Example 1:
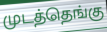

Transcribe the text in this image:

முடத்தெங்கு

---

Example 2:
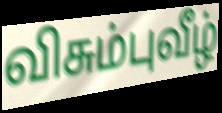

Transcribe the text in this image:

விசும்புவீழ்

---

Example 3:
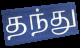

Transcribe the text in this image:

தந்து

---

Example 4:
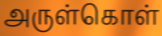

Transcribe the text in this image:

அருள்கொள்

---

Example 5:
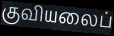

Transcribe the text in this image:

குவியலைப்